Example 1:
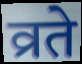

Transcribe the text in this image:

व्रते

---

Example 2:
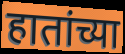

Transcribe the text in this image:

हातांच्या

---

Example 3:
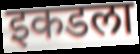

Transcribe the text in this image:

इकडला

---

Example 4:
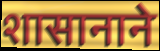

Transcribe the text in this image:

शासानाने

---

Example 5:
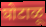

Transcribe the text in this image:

घोटाळू